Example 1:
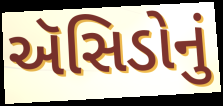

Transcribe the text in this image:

ઍસિડોનું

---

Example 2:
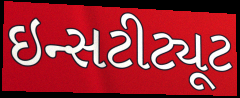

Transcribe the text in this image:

ઇન્સટીટ્યૂટ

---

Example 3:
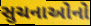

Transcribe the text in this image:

સુચનાઓનો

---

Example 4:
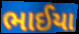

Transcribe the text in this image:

ભાઈયા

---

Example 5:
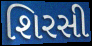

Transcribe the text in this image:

શિરસી